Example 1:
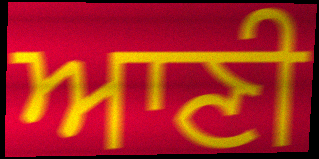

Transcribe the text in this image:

ਆਣੀ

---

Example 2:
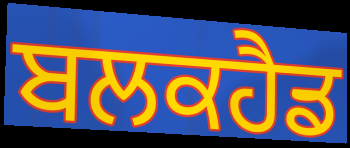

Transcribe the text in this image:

ਬਲਕਹੈਡ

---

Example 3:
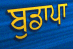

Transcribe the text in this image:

ਬੁਡਾਪਾ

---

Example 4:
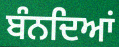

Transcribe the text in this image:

ਬੰਨਦਿਆਂ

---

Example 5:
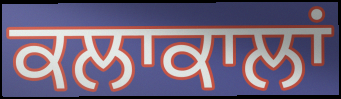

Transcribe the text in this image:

ਕਲਾਕਾਲਾਂ